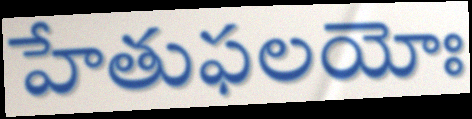
హేతుఫలయోః